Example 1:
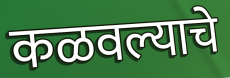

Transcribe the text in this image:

कळवल्याचे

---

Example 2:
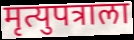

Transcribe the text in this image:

मृत्युपत्राला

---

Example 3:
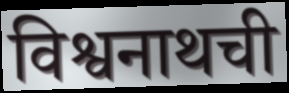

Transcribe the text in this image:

विश्वनाथची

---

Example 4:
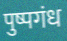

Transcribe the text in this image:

पुष्पगंध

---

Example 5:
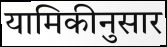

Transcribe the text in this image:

यामिकीनुसार